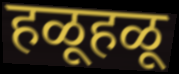
हळूहळू